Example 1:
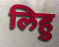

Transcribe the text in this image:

लिहु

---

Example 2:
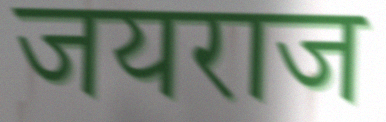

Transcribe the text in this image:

जयराज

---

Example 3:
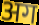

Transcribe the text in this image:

अग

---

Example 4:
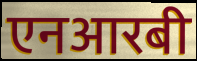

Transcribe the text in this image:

एनआरबी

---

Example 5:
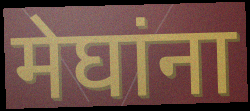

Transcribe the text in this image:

मेघांना